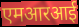
एमआरआई